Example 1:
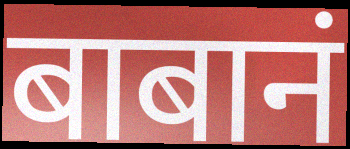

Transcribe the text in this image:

बाबानं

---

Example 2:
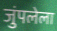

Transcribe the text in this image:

जुंपलेला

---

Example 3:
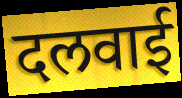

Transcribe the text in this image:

दलवाई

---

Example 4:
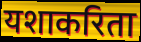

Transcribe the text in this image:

यशाकरिता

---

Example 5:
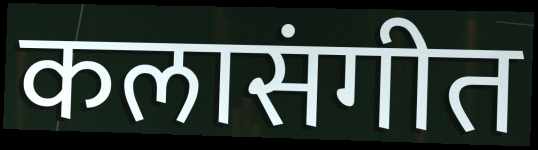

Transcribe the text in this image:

कलासंगीत